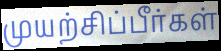
முயற்சிப்பீர்கள்